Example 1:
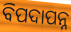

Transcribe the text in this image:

ବିପଦାପନ୍ନ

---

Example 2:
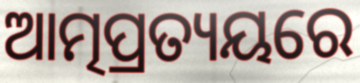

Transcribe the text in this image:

ଆତ୍ମପ୍ରତ୍ୟୟରେ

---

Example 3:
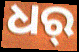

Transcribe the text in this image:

ଧର୍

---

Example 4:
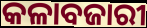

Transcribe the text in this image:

କଳାବଜାରୀ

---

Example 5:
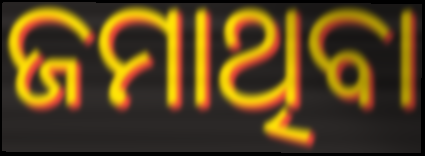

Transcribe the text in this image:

ଜମାଥିବା